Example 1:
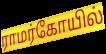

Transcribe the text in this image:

ராமர்கோயில்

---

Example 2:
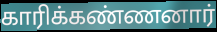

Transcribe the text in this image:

காரிக்கண்ணனார்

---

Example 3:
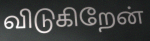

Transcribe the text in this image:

விடுகிறேன்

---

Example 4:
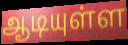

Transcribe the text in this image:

ஆடியுள்ள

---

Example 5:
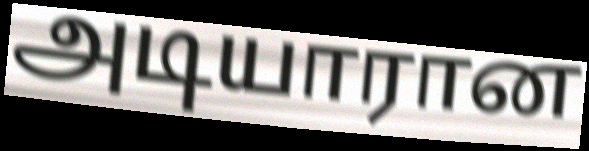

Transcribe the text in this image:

அடியாரான